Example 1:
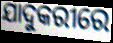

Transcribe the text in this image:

ଯାଦୁକରୀରେ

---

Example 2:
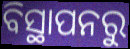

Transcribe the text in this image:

ବିସ୍ଥାପନରୁ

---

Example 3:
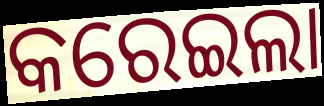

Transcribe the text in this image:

କରେଇଲା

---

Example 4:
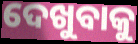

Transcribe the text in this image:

ଦେଖୁବାକୁ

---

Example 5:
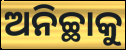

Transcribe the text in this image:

ଅନିଚ୍ଛାକୁ